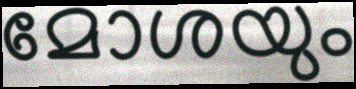
മോശയും